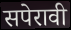
सपेरावी